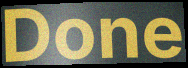
Done